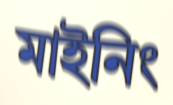
মাইনিং